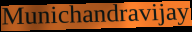
Munichandravijay